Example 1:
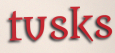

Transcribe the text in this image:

tusks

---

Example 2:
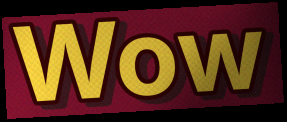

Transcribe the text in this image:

Wow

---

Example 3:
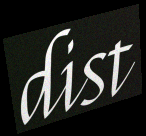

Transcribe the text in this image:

dist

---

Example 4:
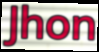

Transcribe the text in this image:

Jhon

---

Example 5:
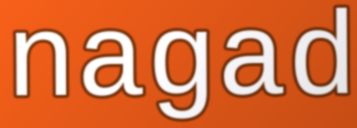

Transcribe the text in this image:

nagad